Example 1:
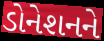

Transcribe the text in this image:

ડોનેશનને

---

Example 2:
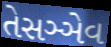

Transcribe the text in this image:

તેસઞ્ઞેવ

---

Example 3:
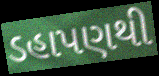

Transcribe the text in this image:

ડહાપણથી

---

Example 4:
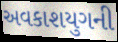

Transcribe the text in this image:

અવકાશયુગની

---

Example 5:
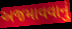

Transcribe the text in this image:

અજમાવવાનું